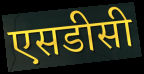
एसडीसी